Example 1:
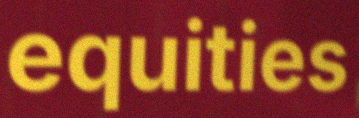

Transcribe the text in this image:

equities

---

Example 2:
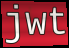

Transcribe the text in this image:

jwt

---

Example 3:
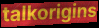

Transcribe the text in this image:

talkorigins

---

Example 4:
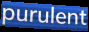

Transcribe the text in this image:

purulent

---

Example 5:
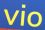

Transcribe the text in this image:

vio